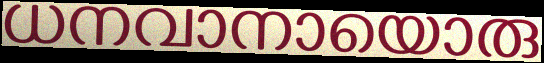
ധനവാനായൊരു